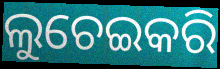
ଲୁଚେଇକରି